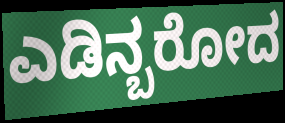
ಎಡಿನ್ಬರೋದ